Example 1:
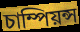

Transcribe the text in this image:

চাম্পিয়ন্স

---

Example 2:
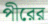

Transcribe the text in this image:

পীরের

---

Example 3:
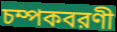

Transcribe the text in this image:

চম্পকবরণী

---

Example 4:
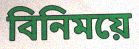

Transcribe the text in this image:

বিনিময়ে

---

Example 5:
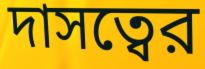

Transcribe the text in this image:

দাসত্বের